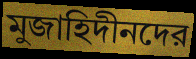
মুজাহিদীনদের